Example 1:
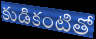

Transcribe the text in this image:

కుడికంటితో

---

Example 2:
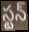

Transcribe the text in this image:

స్టన్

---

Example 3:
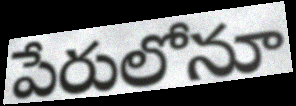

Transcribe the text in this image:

పేరులోనూ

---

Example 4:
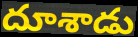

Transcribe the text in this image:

దూశాడు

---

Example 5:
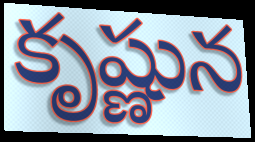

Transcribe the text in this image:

కృష్ణున